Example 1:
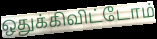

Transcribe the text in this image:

ஒதுக்கிவிட்டோம்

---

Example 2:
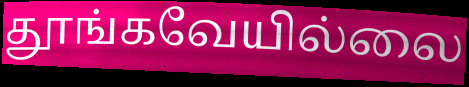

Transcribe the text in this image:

தூங்கவேயில்லை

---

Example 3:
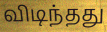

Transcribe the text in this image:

விடிந்தது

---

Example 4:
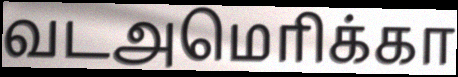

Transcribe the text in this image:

வடஅமெரிக்கா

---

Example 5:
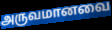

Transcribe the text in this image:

அருவமானவை